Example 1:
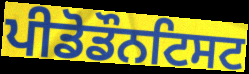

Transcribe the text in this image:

ਪੀਡੋਡੌਨਟਿਸਟ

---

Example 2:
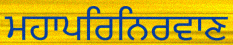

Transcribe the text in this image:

ਮਹਾਪਰਿਨਿਰਵਾਣ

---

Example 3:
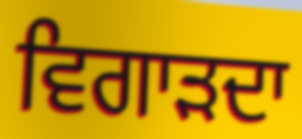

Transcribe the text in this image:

ਵਿਗਾੜਦਾ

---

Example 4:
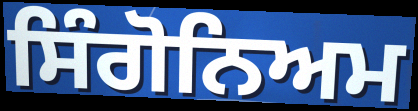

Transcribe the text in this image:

ਸਿੰਗੋਨਿਅਮ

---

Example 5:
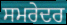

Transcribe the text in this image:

ਸਮਰੇਦਰ